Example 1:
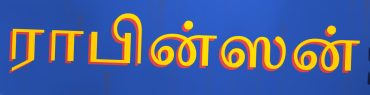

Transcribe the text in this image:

ராபின்ஸன்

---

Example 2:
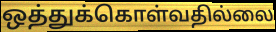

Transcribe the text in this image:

ஒத்துக்கொள்வதில்லை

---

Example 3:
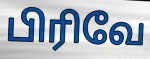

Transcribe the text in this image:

பிரிவே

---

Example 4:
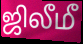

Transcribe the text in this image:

ஜிலீமீ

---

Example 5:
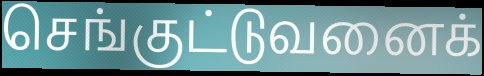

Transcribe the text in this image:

செங்குட்டுவனைக்